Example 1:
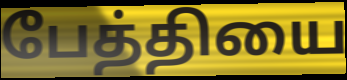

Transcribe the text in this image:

பேத்தியை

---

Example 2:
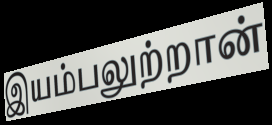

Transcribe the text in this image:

இயம்பலுற்றான்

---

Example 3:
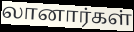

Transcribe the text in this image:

லானார்கள்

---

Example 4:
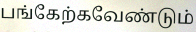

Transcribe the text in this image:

பங்கேற்கவேண்டும்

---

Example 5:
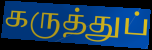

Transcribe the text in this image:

கருத்துப்